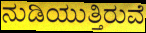
ನುಡಿಯುತ್ತಿರುವೆ